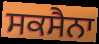
ਸਕਸੈਨਾ